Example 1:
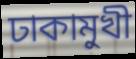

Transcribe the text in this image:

ঢাকামুখী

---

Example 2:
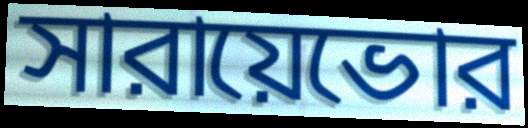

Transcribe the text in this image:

সারায়েভোর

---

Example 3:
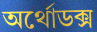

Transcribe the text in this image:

অর্থোডক্স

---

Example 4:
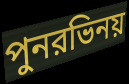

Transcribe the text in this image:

পুনরভিনয়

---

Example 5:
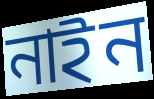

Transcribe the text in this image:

নাইন